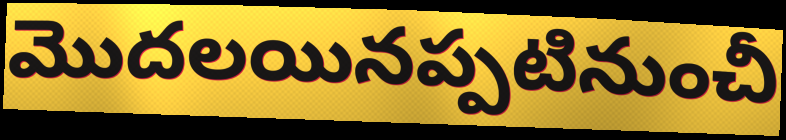
మొదలయినప్పటినుంచీ